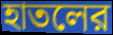
হাতলের